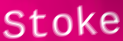
Stoke